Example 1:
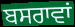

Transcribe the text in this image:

ਬਸਰਾਵਾਂ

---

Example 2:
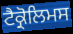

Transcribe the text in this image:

ਟੈਕ੍ਰੋਲਿਮਸ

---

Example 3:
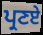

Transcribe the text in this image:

ਪ੍ਰਣਏ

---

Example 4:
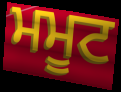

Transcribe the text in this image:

ਮਮੂਟ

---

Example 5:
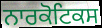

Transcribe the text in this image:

ਨਾਰਕੋਟਿਕਸ